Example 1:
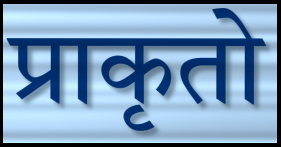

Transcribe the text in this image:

प्राकृतो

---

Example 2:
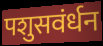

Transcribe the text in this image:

पशुसवंर्धन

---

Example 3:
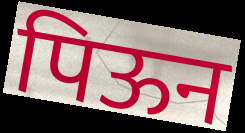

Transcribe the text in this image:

पिऊन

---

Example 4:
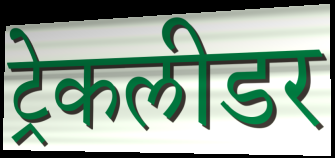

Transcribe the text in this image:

ट्रेकलीडर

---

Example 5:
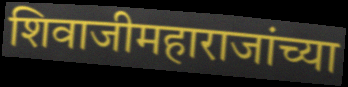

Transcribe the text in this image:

शिवाजीमहाराजांच्या